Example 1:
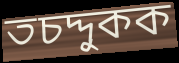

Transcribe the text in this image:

তচদ্দুকক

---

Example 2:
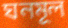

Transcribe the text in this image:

ঘনমূল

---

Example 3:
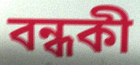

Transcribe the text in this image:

বন্ধকী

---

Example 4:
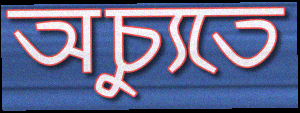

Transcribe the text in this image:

অচ্যুতে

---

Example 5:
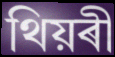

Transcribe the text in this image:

থিয়ৰী